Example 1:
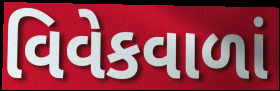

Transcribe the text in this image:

વિવેકવાળાં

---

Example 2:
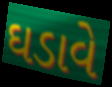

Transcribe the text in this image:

ઘડાવે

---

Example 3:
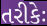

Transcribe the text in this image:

તરીકેઃ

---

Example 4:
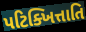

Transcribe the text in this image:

પટિક્ખિત્તાતિ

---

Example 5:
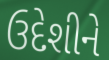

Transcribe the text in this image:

ઉદેશીને